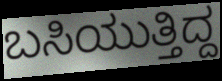
ಬಸಿಯುತ್ತಿದ್ದ